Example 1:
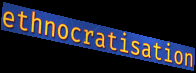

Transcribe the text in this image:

ethnocratisation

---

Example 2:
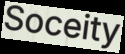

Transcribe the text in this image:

Soceity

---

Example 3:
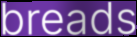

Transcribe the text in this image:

breads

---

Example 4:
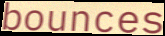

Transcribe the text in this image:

bounces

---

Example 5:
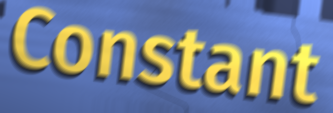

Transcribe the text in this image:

Constant